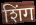
शिंग